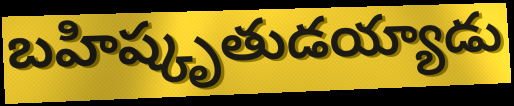
బహిష్కృతుడయ్యాడు